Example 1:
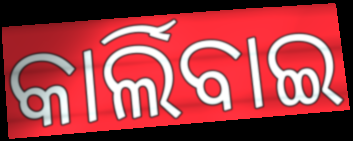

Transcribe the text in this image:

କାର୍ଲିବାଇ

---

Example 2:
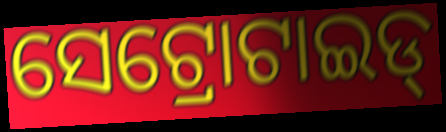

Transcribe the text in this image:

ସେଟ୍ରୋଟାଇଡ୍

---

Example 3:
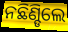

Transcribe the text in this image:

ନଛିଣ୍ଡିଲେ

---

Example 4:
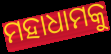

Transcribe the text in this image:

ମହାଧାମକୁ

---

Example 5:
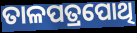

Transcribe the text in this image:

ତାଳପତ୍ରପୋଥି